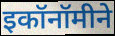
इकॉनॉमीने